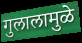
गुलालामुळे